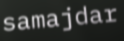
samajdar